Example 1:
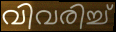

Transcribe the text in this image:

വിവരിച്ച്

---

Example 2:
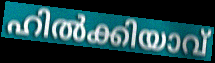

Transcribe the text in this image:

ഹിൽക്കിയാവ്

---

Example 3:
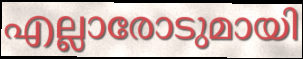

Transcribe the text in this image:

എല്ലാരോടുമായി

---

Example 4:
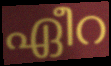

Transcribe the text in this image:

ഏീറ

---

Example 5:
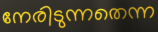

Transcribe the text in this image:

നേരിടുന്നതെന്ന